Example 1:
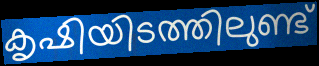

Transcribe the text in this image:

കൃഷിയിടത്തിലുണ്ട്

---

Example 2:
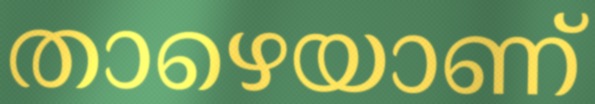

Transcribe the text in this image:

താഴെയാണ്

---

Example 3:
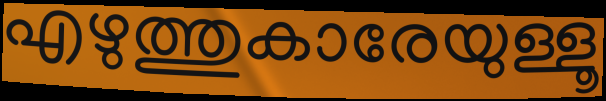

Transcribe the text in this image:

എഴുത്തുകാരേയുള്ളൂ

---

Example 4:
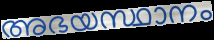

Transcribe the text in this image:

അഭയസ്ഥാനം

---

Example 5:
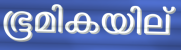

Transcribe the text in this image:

ഭൂമികയില്